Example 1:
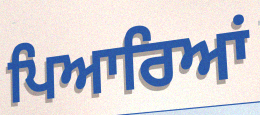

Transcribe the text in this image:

ਪਿਆਰਿਆਂ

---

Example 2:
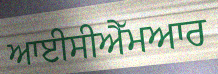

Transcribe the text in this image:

ਆਈਸੀਐੱਮਆਰ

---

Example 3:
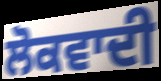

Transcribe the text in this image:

ਲੋਕਵਾਦੀ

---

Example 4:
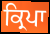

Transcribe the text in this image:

ਕ੍ਰਿਪਾ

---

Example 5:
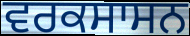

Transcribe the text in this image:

ਵਰਕਸਾਸਨ